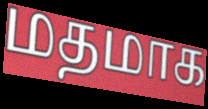
மதமாக